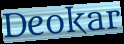
Deokar